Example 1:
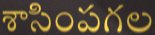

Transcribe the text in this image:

శాసింపగల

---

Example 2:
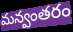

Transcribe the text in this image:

మన్వంతరం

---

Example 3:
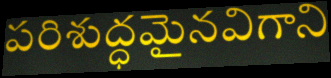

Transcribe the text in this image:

పరిశుద్ధమైనవిగాని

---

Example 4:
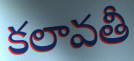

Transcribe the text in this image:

కలావతీ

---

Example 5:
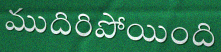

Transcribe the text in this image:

ముదిరిపోయింది